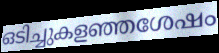
ഒടിച്ചുകളഞ്ഞശേഷം